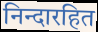
निन्दारहित